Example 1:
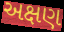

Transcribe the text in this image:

અક્ષણ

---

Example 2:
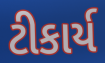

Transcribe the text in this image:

ટીકાર્ય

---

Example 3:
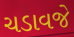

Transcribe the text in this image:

ચડાવજે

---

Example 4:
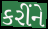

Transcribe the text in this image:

કરીંને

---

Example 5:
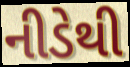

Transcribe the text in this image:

નીડેથી